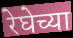
रेघेच्या